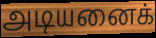
அடியனைக்